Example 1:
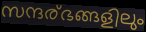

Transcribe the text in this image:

സന്ദര്ഭങ്ങളിലും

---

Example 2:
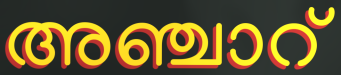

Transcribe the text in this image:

അഞ്ചാറ്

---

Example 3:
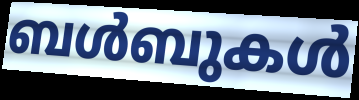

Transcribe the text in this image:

ബൾബുകൾ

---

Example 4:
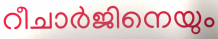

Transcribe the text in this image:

റീചാർജിനെയും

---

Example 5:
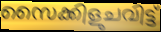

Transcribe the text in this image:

സൈക്കിളുചവിട്ട്